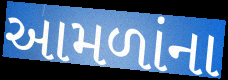
આમળાંના